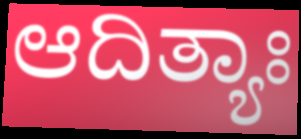
ಆದಿತ್ಯಾಃ